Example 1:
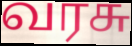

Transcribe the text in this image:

வரசு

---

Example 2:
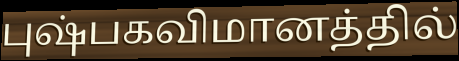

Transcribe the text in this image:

புஷ்பகவிமானத்தில்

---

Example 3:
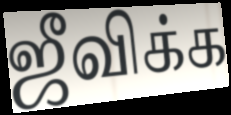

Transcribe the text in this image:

ஜீவிக்க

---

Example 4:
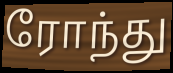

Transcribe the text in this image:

ரோந்து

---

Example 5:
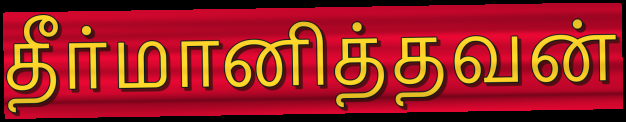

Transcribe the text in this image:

தீர்மானித்தவன்